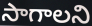
సాగాలని